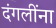
दंगलींना